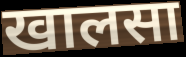
खालसा